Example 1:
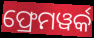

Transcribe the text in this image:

ଫ୍ରେମୱର୍କ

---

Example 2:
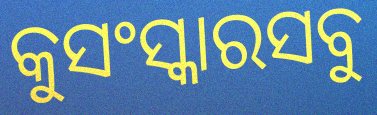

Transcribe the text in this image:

କୁସଂସ୍କାରସବୁ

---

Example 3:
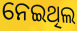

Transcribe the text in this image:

ନେଇଥିଲ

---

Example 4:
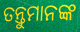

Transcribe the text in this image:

ତନ୍ତୁମାନଙ୍କ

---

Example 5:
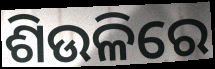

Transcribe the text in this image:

ଶିଉଳିରେ